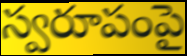
స్వరూపంపై